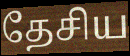
தேசிய